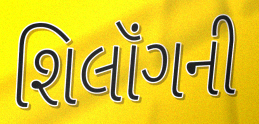
શિલૉંગની